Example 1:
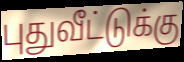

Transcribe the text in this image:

புதுவீட்டுக்கு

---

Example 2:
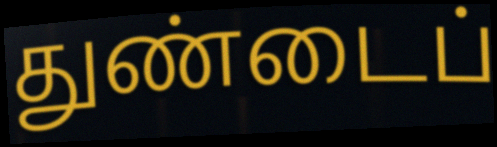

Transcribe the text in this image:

துண்டைப்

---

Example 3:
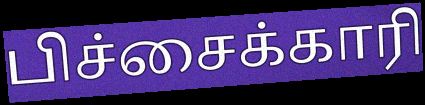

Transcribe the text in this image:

பிச்சைக்காரி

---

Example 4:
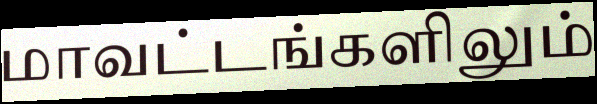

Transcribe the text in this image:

மாவட்டங்களிலும்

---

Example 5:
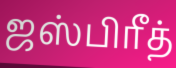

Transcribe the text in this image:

ஜஸ்பிரீத்